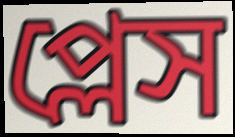
প্লেস